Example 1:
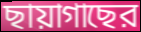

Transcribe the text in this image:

ছায়াগাছের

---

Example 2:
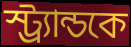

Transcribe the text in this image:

স্ট্র্যান্ডকে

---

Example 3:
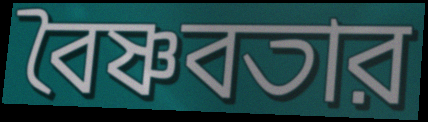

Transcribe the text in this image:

বৈষ্ণবতার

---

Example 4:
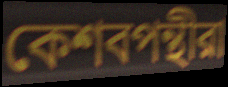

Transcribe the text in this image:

কেশবপন্থীরা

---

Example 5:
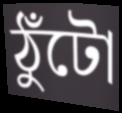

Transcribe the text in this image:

ঠুঁটো